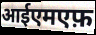
आईएमएफ़